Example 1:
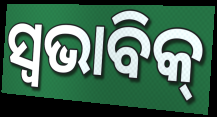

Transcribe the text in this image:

ସ୍ୱଭାବିକ୍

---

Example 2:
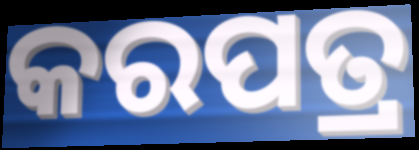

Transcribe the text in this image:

କରପତ୍ର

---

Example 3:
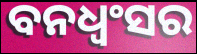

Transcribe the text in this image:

ବନଧ୍ଵଂସର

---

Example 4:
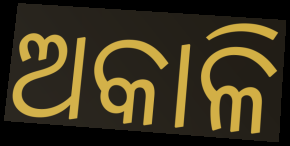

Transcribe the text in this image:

ଅକାଳି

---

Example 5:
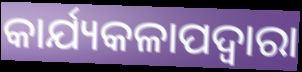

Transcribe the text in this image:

କାର୍ଯ୍ୟକଳାପଦ୍ବାରା